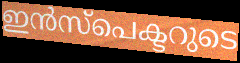
ഇൻസ്പെക്ടറുടെ